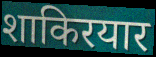
शाकिरयार